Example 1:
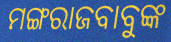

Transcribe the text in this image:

ମଙ୍ଗରାଜବାବୁଙ୍କ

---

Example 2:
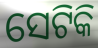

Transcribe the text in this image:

ସେଟିକି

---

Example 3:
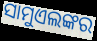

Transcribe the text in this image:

ସାମୁଏଲଙ୍କର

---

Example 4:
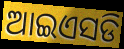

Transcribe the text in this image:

ଆଇଏସଡି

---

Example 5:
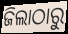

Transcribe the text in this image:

ଜିଲାଠାରୁ